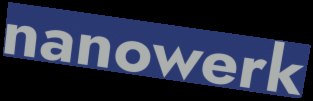
nanowerk